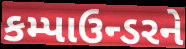
કમ્પાઉન્ડરને